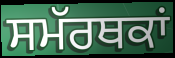
ਸਮੱਰਥਕਾਂ